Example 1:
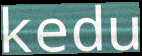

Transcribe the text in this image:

kedu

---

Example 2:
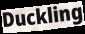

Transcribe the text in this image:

Duckling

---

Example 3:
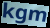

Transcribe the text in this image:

kgm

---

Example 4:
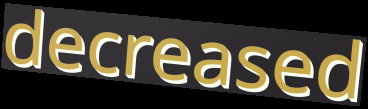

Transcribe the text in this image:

decreased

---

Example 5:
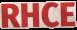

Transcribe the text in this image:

RHCE